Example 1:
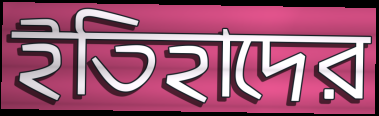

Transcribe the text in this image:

ইতিহাদের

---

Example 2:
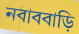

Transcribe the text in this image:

নবাববাড়ি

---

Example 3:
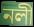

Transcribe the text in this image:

নলী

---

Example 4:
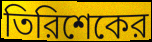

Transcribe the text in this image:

তিরিশেকের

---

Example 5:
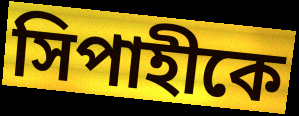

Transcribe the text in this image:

সিপাহীকে